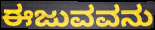
ಈಜುವವನು